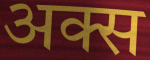
अक्स